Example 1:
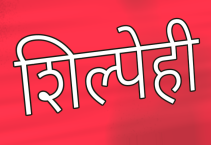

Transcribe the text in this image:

शिल्पेही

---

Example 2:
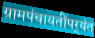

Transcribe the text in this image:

ग्रामपंचायतींपर्यंत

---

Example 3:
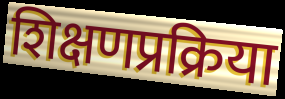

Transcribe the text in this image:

शिक्षणप्रक्रिया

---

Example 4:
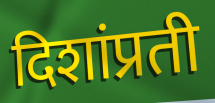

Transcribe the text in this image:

दिशांप्रती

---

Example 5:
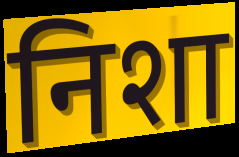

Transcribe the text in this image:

निशा